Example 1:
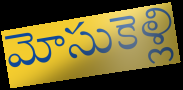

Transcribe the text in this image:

మోసుకెళ్లి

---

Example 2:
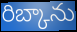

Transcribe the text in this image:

రిబ్కాను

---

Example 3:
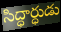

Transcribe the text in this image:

సిద్ధార్ధుడు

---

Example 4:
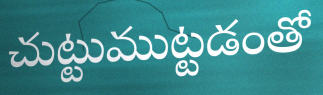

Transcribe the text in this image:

చుట్టుముట్టడంతో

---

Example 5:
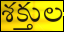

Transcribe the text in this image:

శక్తుల